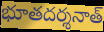
భూతదర్శనాత్